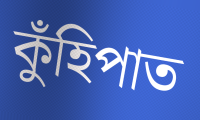
কুঁহিপাত